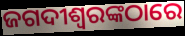
ଜଗଦୀଶ୍ୱରଙ୍କଠାରେ